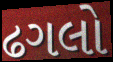
ઢગલો